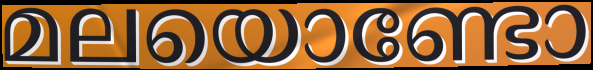
മലയൊണ്ടോ